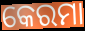
କେରମା